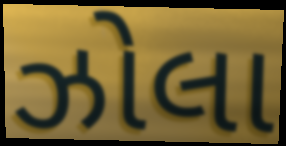
ઝોલા